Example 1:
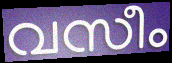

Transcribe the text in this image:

വസീം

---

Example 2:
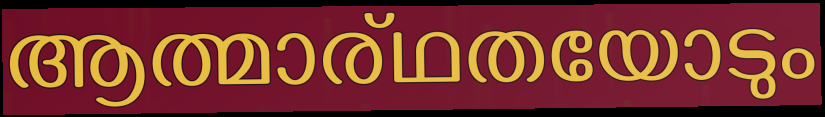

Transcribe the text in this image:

ആത്മാര്ഥതയോടും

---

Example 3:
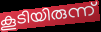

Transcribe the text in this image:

കൂടിയിരുന്ന്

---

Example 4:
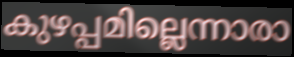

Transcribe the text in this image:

കുഴപ്പമില്ലെന്നാരാ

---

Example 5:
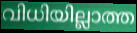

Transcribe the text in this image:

വിധിയില്ലാത്ത